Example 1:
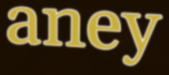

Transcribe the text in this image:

aney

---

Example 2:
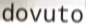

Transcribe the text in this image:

dovuto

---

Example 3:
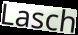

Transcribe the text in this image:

Lasch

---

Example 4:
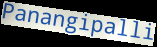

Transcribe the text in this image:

Panangipalli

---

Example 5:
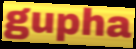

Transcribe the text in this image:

gupha